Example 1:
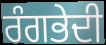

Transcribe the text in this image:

ਰੰਗਭੇਦੀ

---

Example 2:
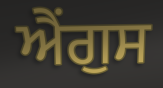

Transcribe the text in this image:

ਐਂਗੁਸ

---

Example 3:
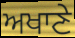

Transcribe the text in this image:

ਅਖਾਣੇ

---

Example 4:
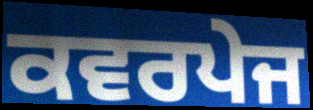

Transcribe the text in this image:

ਕਵਰਪੇਜ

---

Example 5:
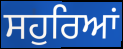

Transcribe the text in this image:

ਸਹੁਰਿਆਂ